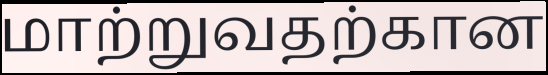
மாற்றுவதற்கான